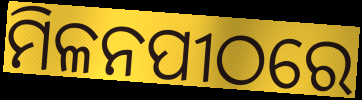
ମିଳନପୀଠରେ